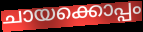
ചായക്കൊപ്പം